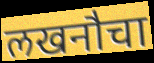
लखनौचा